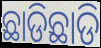
ଛାଡିଛାଡି